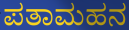
ಪತಾಮಹನ